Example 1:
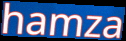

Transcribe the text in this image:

hamza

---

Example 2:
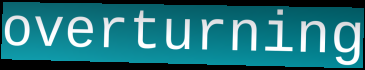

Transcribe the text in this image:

overturning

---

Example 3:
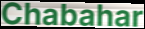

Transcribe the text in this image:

Chabahar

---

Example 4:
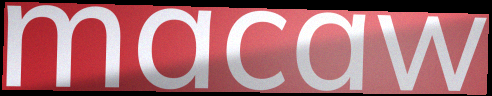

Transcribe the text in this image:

macaw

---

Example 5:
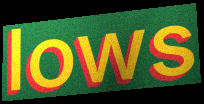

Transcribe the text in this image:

lows